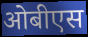
ओबीएस